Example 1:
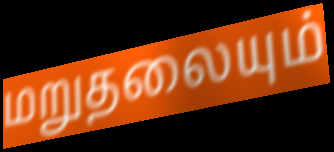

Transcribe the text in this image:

மறுதலையும்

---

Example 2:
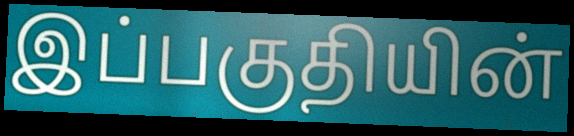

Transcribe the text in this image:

இப்பகுதியின்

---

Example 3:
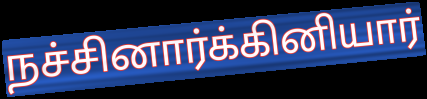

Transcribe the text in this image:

நச்சினார்க்கினியார்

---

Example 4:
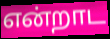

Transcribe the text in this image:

என்றாட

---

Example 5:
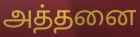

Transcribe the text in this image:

அத்தனை